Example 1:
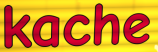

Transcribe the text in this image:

kache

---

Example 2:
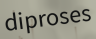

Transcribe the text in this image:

diproses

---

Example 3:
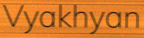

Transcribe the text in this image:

Vyakhyan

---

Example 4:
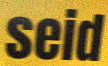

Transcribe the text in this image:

seid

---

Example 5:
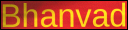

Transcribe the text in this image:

Bhanvad